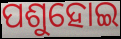
ପଶୁହୋଇ